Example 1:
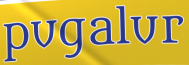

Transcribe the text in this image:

pugalur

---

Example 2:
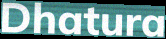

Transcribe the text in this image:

Dhatura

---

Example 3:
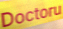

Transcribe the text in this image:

Doctoru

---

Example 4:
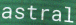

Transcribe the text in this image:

astral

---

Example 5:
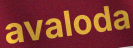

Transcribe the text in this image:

avaloda